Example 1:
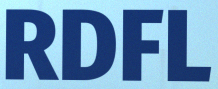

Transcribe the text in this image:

RDFL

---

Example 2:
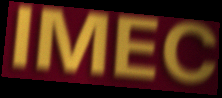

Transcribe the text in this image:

IMEC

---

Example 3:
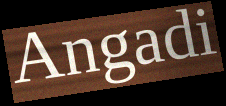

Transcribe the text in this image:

Angadi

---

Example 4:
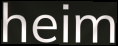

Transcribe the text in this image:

heim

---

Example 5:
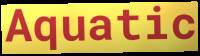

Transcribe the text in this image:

Aquatic